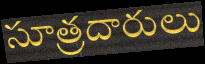
సూత్రదారులు